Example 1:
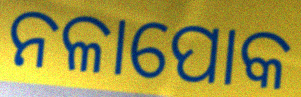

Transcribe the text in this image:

ନଳାପୋକ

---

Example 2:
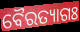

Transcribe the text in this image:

ବୈରତ୍ୟାଗଃ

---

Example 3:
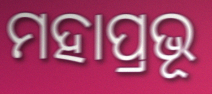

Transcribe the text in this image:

ମହାପ୍ରଭୂ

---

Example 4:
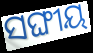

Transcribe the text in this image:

ସଙ୍ଘୀୟ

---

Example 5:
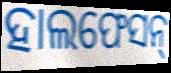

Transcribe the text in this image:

ହାଲଫେସନ୍